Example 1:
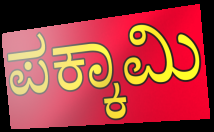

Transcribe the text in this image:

ಪಕ್ಕಾಮಿ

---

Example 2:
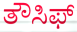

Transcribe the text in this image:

ತೌಸಿಫ್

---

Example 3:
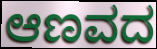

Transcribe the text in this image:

ಆಣವದ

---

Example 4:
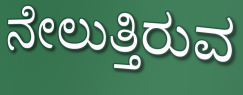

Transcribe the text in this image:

ನೇಲುತ್ತಿರುವ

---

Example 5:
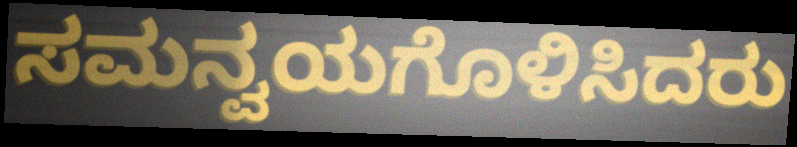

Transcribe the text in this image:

ಸಮನ್ವಯಗೊಳಿಸಿದರು